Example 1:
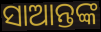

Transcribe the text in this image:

ସାଆନ୍ତଙ୍କ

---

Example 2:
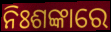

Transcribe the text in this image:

ନିଃଶଙ୍କାରେ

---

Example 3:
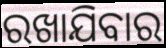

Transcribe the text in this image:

ରଖାଯିବାର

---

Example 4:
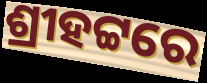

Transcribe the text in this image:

ଶ୍ରୀହଟ୍ଟରେ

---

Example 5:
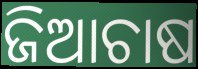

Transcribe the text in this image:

ଜିଆଚାଷ